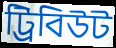
ট্রিবিউট